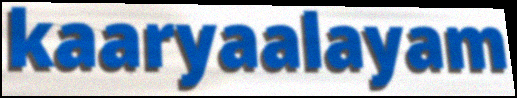
kaaryaalayam